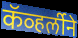
कॅव्हर्लीने